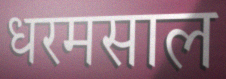
धरमसाल